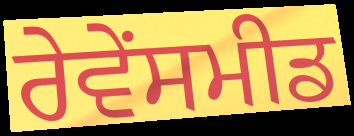
ਰੇਵੇਂਸਮੀਡ